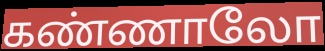
கண்ணாலோ